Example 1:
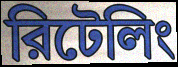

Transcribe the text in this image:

রিটেলিং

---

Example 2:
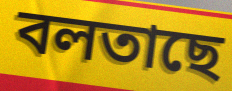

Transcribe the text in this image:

বলতাছে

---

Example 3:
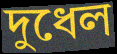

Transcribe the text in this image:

দুধেল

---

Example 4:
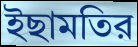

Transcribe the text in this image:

ইছামতির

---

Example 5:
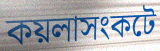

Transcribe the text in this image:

কয়লাসংকটে